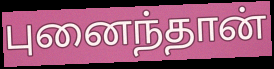
புனைந்தான்